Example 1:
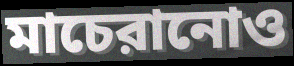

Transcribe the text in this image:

মাচেরানোও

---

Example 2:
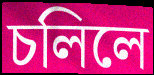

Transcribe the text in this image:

চলিলে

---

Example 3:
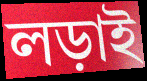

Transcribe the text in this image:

লড়াই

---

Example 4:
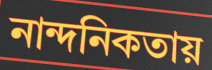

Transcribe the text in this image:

নান্দনিকতায়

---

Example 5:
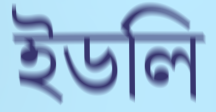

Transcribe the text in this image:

ইডলি